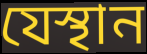
যেস্থান